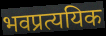
भवप्रत्ययिक